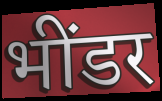
भींडर